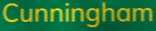
Cunningham